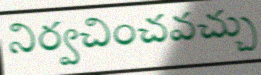
నిర్వచించవచ్చు